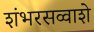
शंभरसव्वाशे